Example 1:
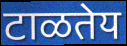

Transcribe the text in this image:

टाळतेय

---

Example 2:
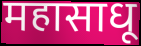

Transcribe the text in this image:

महासाधू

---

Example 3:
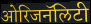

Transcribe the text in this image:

ओरिजनॅलिटी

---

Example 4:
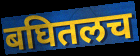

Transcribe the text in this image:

बघितलच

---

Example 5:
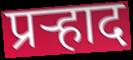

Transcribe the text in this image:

प्रर्‍हाद